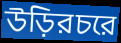
উড়িরচরে